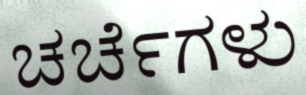
ಚರ್ಚೆಗಳು